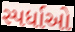
સ્પર્ધાઓ